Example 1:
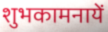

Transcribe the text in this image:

शुभकामनायें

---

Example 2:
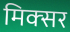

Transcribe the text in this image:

मिक्‍सर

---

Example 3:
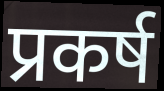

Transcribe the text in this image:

प्रकर्ष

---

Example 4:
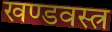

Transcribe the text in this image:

खण्डवस्त्र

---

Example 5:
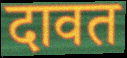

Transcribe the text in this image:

दावत